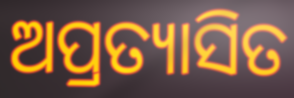
ଅପ୍ରତ୍ୟାସିତ